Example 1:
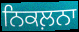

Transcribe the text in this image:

ਨਿਕਲ਼ਨਾ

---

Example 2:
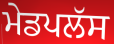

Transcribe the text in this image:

ਮੇਡਪਲੱਸ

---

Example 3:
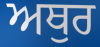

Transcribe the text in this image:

ਅਥੁਰ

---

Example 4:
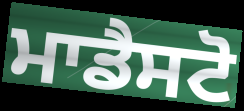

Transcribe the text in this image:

ਮਾਡੈਸਟੋ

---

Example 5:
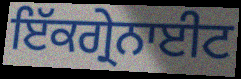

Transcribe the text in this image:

ਇੱਕਗ੍ਰੇਨਾਈਟ